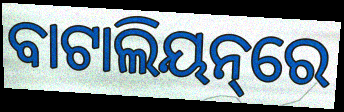
ବାଟାଲିୟନ୍‌ରେ